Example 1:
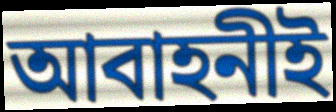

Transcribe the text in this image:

আবাহনীই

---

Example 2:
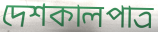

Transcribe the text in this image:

দেশকালপাত্র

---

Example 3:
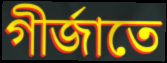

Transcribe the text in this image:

গীর্জাতে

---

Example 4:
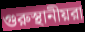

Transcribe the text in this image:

গুরুস্থানীয়রা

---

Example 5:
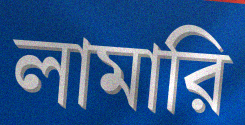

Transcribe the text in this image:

লামারি